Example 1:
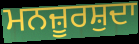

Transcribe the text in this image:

ਮਨਜ਼ੂਰਸ਼ੁਦਾ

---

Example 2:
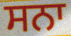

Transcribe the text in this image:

ਸਨਾ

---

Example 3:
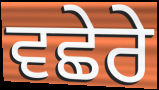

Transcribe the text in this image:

ਵਛੇਰੇ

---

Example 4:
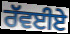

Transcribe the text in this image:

ਰੱਵਈਏ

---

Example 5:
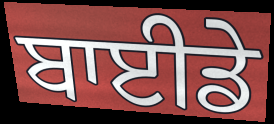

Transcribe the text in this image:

ਬਾਈਡੇ